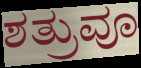
ಶತ್ರುವೂ